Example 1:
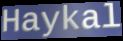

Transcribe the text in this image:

Haykal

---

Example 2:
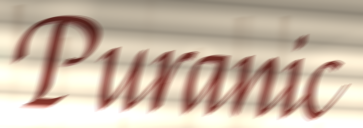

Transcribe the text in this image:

Puranic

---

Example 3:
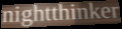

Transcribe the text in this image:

nightthinker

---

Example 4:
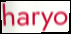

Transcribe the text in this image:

haryo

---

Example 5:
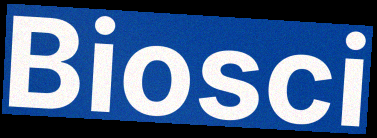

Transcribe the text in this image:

Biosci